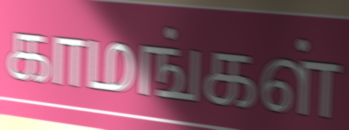
காமங்கள்